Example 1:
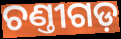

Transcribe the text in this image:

ଚଣ୍ତୀଗଡ଼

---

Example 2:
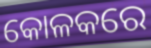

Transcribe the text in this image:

କୋଳକରେ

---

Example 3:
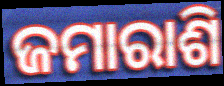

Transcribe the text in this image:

ଜମାରାଶି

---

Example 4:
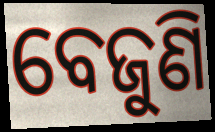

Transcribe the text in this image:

ବେଜୁଣି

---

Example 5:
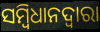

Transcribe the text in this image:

ସମ୍ବିଧାନଦ୍ବାରା